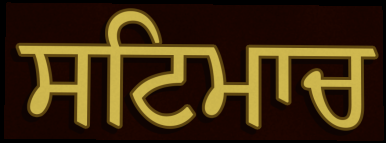
ਸਟਿਮਾਚ